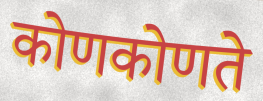
कोणकोणते